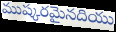
ముష్కరమైనదియు